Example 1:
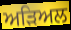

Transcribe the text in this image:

ਅੜਿਅਲ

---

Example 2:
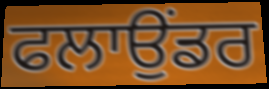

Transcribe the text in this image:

ਫਲਾਉਂਡਰ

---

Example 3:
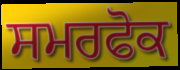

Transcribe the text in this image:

ਸਮਰਫੋਕ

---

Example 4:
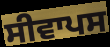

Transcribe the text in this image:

ਸੀਵਾਪਸ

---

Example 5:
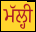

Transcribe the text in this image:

ਮੱਲ੍ਹੀ